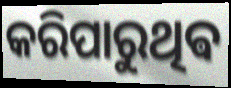
କରିପାରୁଥିଵ